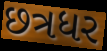
છત્રધર